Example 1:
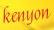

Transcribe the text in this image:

kenyon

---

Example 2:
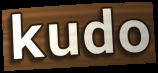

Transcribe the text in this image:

kudo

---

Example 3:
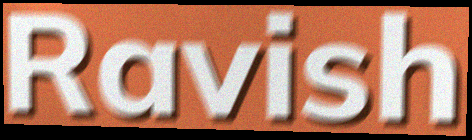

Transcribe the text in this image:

Ravish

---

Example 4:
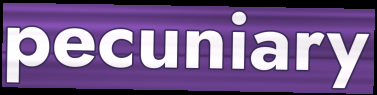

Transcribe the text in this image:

pecuniary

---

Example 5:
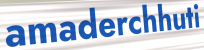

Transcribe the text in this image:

amaderchhuti